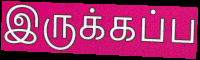
இருக்கப்ப